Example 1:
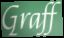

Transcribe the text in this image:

Graff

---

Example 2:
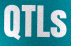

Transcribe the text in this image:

QTLs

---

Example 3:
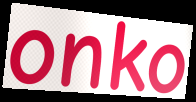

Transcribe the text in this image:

onko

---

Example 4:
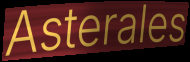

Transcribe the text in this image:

Asterales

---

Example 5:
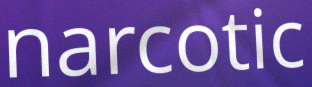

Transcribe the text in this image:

narcotic